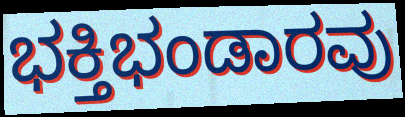
ಭಕ್ತಿಭಂಡಾರವು